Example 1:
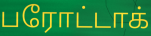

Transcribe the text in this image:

பரோட்டாக்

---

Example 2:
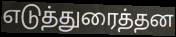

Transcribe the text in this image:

எடுத்துரைத்தன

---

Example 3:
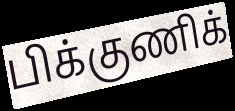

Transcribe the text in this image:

பிக்குணிக்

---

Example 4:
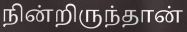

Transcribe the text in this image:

நின்றிருந்தான்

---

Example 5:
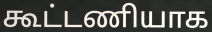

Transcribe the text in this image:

கூட்டணியாக